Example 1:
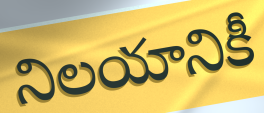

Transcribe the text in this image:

నిలయానికీ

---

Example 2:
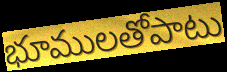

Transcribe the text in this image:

భూములతోపాటు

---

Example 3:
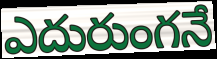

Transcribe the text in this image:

ఎదురుంగనే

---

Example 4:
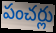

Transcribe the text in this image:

పంచర్లు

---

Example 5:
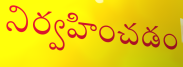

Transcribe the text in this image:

నిర్వహించడం